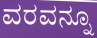
ವರವನ್ನೂ